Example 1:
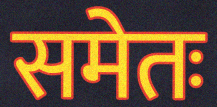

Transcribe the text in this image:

समेतः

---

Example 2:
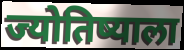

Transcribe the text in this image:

ज्योतिष्याला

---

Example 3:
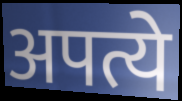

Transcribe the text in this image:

अपत्ये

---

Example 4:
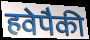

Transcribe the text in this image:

हवेपैकी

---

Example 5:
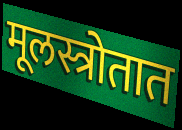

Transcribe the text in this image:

मूलस्त्रोतात